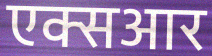
एक्सआर